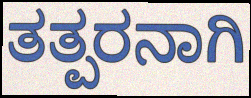
ತತ್ಪರನಾಗಿ